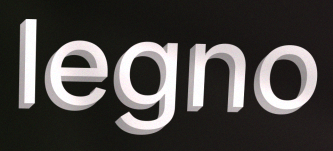
legno